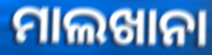
ମାଲଖାନା